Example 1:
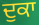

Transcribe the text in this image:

ਦੁਕਾ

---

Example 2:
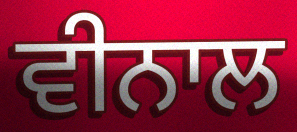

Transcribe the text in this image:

ਵੀਨਾਲ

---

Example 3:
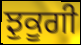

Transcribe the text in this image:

ਝੁਕੂਗੀ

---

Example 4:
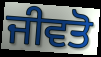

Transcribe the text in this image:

ਜੀਵਤੋ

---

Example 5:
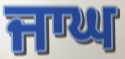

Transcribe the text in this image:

ਜਾਘ